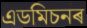
এডমিচনৰ